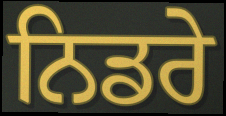
ਨਿਡਰੇ